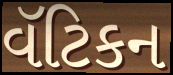
વૅટિકન